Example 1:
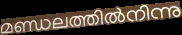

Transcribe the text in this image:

മണ്ഡലത്തിൽനിന്നു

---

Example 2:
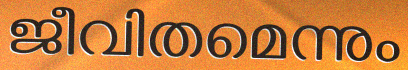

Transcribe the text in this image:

ജീവിതമെന്നും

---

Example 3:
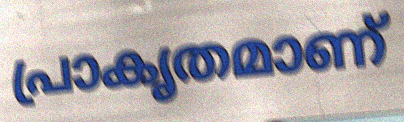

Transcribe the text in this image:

പ്രാകൃതമാണ്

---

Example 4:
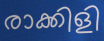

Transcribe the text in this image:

രാക്കിളി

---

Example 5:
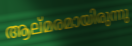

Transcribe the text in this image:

ആല്മരമായിരുന്നു